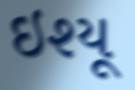
ઇશ્યૂ